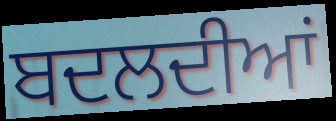
ਬਦਲਦੀਆਂ